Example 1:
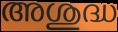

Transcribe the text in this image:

അശുദ്ധ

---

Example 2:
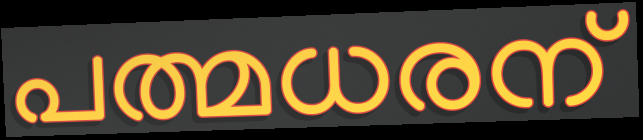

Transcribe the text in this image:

പത്മധരന്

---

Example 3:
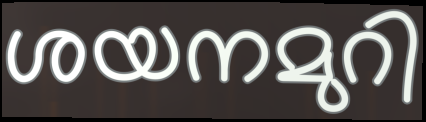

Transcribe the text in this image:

ശയനമുറി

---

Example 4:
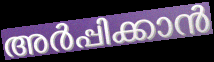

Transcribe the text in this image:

അർപ്പിക്കാൻ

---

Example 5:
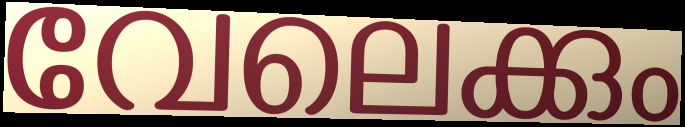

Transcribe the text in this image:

വേലെക്കും